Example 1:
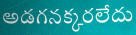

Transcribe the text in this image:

అడగనక్కరలేదు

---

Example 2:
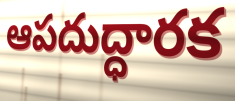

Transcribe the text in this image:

ఆపదుద్ధారక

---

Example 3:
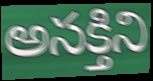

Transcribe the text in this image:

అసక్తిని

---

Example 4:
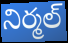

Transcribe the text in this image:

నిర్మల్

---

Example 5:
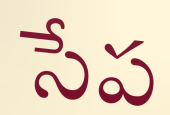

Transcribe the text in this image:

సేప